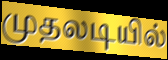
முதலடியில்